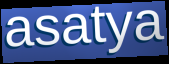
asatya